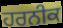
ਹਰਨੀਕ